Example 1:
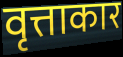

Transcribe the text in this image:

वृत्ताकार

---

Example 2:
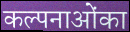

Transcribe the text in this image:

कल्पनाओंका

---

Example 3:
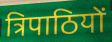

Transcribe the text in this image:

त्रिपाठियों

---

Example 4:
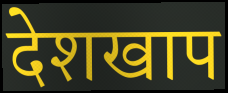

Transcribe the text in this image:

देशखाप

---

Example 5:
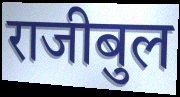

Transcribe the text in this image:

राजीबुल